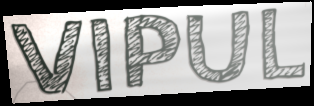
VIPUL